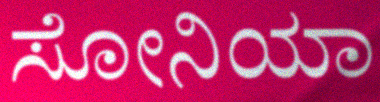
ಸೋನಿಯಾ